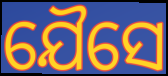
ଯୈସେ